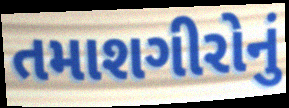
તમાશગીરોનું